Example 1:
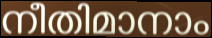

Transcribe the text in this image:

നീതിമാനാം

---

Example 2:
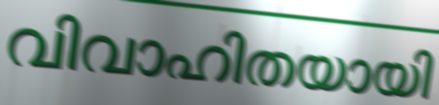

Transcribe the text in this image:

വിവാഹിതയായി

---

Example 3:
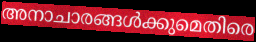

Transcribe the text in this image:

അനാചാരങ്ങൾക്കുമെതിരെ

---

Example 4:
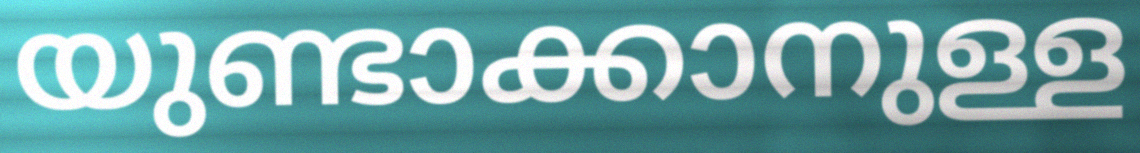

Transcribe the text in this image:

യുണ്ടാക്കാനുള്ള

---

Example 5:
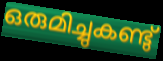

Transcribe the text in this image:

ഒരുമിച്ചുകണ്ടു്